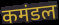
कमंडल